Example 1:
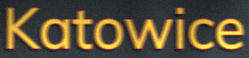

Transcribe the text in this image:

Katowice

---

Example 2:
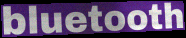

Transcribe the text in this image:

bluetooth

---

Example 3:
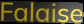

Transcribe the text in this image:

Falaise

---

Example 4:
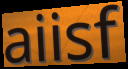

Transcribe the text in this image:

aiisf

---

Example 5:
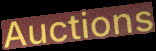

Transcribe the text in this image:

Auctions